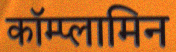
कॉम्प्लामिन